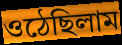
ওঠেছিলাম